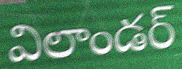
విలాండర్